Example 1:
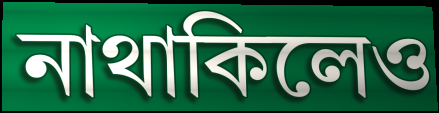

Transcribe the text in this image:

নাথাকিলেও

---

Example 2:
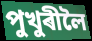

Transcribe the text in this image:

পুখুৰীলৈ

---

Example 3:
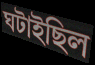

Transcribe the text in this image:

ঘটাইছিল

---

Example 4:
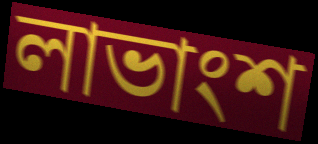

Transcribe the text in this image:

লাভাংশ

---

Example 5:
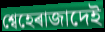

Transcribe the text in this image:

শ্বেহেৰাজাদেই